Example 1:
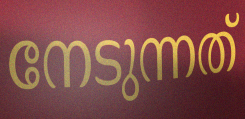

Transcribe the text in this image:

നേടുന്നത്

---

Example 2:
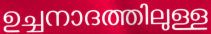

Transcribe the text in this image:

ഉച്ചനാദത്തിലുള്ള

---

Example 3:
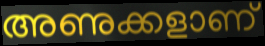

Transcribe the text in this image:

അണുക്കളാണ്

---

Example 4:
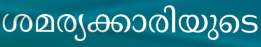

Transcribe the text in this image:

ശമര്യക്കാരിയുടെ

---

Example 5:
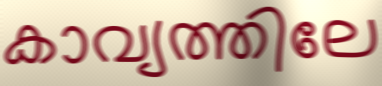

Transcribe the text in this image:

കാവ്യത്തിലേ